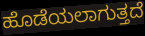
ಹೊಡೆಯಲಾಗುತ್ತದೆ